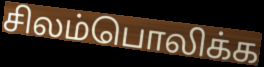
சிலம்பொலிக்க